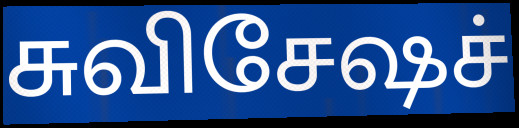
சுவிசேஷச்